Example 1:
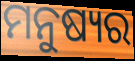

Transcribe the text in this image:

ମନୁଷ୍ୟର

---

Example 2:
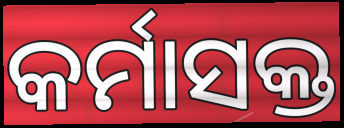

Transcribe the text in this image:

କର୍ମାସକ୍ତ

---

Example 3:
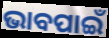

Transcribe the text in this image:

ଭାବପାଇଁ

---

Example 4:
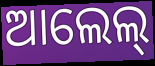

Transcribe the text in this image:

ଆଲେଲ୍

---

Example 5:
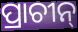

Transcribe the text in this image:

ପ୍ରାଚୀନ୍